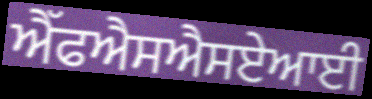
ਐੱਫਐਸਐਸਏਆਈ